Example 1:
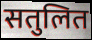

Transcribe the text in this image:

सतुलित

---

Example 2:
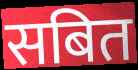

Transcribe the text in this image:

सबित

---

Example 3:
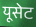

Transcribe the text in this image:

यूसेट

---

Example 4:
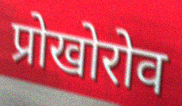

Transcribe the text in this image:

प्रोखोरोव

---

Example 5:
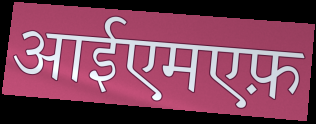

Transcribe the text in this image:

आईएमएफ़